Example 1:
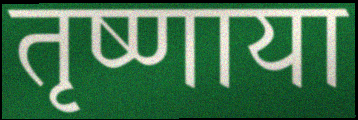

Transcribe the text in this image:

तृष्णाया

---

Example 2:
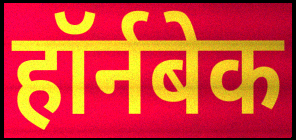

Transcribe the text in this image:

हॉर्नबेक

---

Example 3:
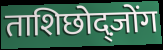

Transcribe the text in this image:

ताशिछोद्ज़ोंग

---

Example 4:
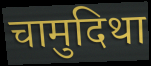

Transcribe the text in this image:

चामुदिथा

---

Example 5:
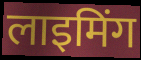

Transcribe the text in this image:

लाइमिंग